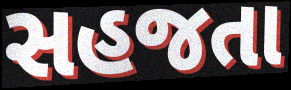
સહજતા